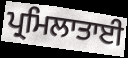
ਪ੍ਰਮਿਲਾਤਾਈ